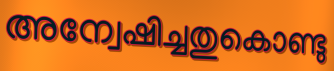
അന്വേഷിച്ചതുകൊണ്ടു